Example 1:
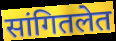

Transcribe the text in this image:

सांगितलेत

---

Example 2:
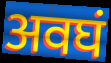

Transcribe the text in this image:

अवघं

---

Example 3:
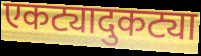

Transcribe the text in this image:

एकट्यादुकट्या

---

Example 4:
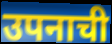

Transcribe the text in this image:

उपनाची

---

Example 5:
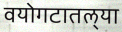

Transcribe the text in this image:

वयोगटातल्या